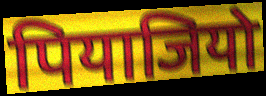
पियाजियो